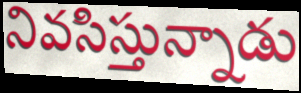
నివసిస్తున్నాడు